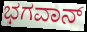
ಭಗವಾನ್